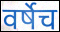
वर्षेच